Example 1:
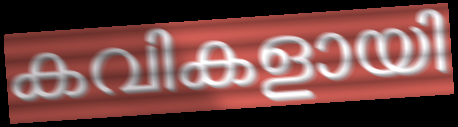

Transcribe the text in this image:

കവികളായി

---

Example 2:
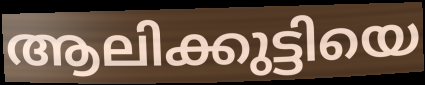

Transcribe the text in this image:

ആലിക്കുട്ടിയെ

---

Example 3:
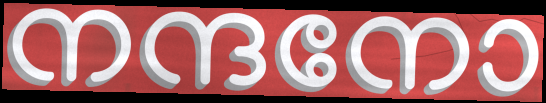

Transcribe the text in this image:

നന്ദനോ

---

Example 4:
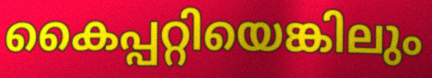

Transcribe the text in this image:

കൈപ്പറ്റിയെങ്കിലും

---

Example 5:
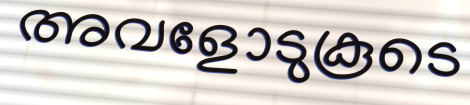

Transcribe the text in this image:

അവളോടുകൂടെ